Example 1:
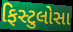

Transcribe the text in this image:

ફિસ્ટુલોસા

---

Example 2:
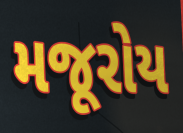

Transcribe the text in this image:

મજૂરોય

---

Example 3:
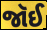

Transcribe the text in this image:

જૉઈ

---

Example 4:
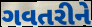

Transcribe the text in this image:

ગવતરીને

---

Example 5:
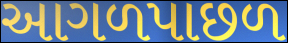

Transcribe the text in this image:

આગળપાછળ